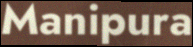
Manipura